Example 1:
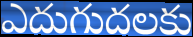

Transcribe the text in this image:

ఎదుగుదలకు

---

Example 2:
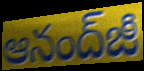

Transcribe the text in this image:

ఆనంద్‌జీ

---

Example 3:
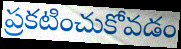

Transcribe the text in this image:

ప్రకటించుకోవడం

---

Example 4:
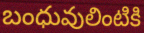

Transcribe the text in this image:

బంధువులింటికి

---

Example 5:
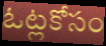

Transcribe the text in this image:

ఓట్లకోసం